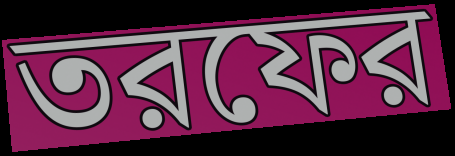
তরফের